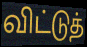
விட்டுத்